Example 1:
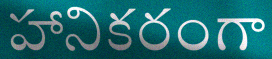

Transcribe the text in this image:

హానికరంగా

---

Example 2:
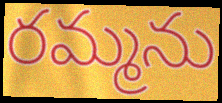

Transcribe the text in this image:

రమ్మను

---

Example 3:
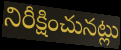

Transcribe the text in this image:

నిరీక్షించునట్లు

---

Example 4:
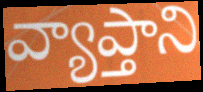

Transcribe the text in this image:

వ్యాప్తాని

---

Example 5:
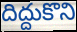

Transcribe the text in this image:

దిద్దుకొని